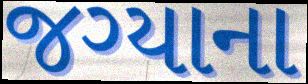
જગ્યાના